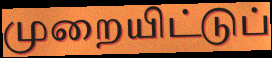
முறையிட்டுப்